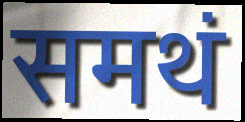
समथं